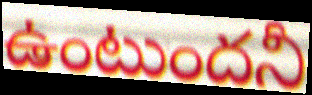
ఉంటుందనీ